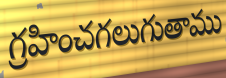
గ్రహించగలుగుతాము